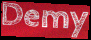
Demy